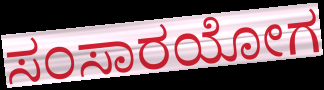
ಸಂಸಾರಯೋಗ